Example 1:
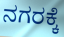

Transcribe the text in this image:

ನಗರಕ್ಕೆ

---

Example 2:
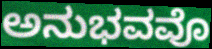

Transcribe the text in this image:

ಅನುಭವವೊ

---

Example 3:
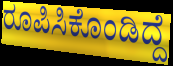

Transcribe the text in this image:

ರೂಪಿಸಿಕೊಂಡಿದ್ದೆ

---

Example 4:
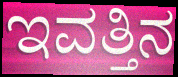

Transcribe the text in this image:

ಇವತ್ತಿನ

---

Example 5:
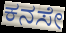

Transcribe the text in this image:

ಕನಸೇ